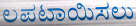
ಲಪಟಾಯಿಸಲು